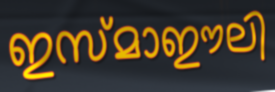
ഇസ്മാഈലി